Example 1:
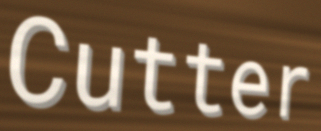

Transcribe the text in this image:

Cutter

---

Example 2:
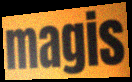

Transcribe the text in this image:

magis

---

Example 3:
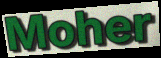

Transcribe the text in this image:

Moher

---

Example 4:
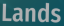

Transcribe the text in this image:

Lands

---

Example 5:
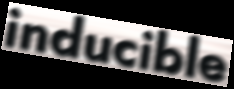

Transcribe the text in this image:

inducible